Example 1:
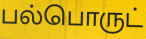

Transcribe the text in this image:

பல்பொருட்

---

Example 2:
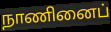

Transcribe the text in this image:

நாணினைப்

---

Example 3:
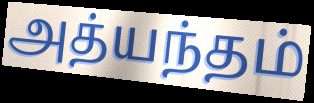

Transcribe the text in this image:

அத்யந்தம்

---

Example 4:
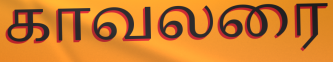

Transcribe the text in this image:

காவலரை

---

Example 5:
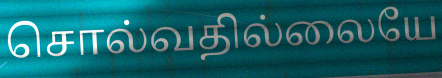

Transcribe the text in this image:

சொல்வதில்லையே